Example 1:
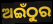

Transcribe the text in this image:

ଅଇଁଠୁର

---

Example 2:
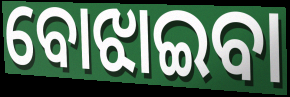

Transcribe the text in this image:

ବୋଝାଇବା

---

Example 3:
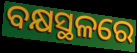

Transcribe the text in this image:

ବକ୍ଷସ୍ଥଳରେ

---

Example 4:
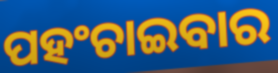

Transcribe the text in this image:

ପହଂଚାଇବାର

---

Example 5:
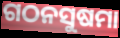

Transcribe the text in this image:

ଗଠନସୁଷମା